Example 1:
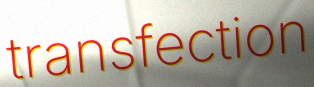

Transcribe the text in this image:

transfection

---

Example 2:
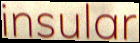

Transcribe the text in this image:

insular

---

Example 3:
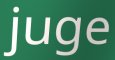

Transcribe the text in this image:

juge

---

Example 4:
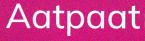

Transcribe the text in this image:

Aatpaat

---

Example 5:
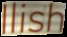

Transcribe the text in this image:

Ilish